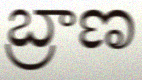
బ్రాణ